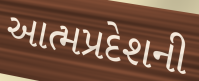
આત્મપ્રદેશની